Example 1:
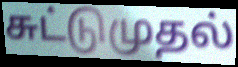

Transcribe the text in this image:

சுட்டுமுதல்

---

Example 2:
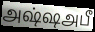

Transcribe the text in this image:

அஷ்ஷஅபீ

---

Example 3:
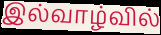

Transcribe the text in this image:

இல்வாழ்வில்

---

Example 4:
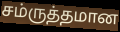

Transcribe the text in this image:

சம்ருத்தமான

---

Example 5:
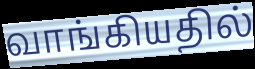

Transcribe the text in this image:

வாங்கியதில்